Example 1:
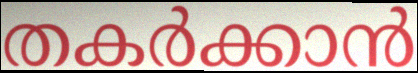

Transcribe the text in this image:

തകർക്കാൻ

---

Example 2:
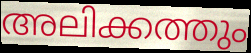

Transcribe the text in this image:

അലിക്കത്തും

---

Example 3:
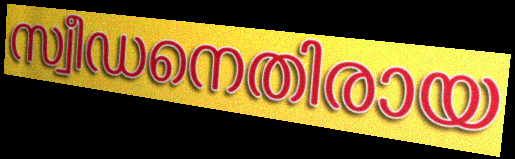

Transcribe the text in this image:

സ്വീഡനെതിരായ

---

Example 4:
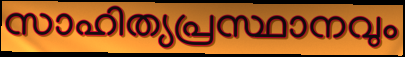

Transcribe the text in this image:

സാഹിത്യപ്രസ്ഥാനവും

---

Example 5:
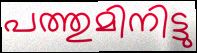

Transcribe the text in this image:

പത്തുമിനിട്ടു